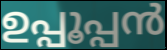
ഉപ്പൂപ്പൻ